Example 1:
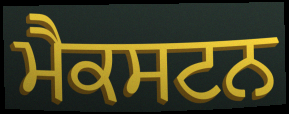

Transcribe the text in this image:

ਮੈਕਸਟਨ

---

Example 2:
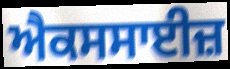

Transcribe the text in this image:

ਐਕਸਸਾਈਜ਼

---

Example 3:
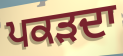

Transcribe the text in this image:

ਪਕੜਦਾ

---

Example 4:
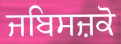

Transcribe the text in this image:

ਜਬਿਸਜ਼ਕੋ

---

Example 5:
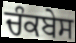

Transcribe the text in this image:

ਚੰਕਬੇਸ